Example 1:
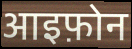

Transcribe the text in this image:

आइफ़ोन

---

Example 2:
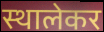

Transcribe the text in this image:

स्थालेकर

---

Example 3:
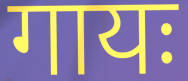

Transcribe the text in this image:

गायः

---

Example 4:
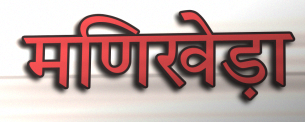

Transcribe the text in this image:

मणिखेड़ा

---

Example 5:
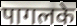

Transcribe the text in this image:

पागलके